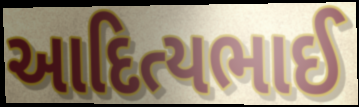
આદિત્યભાઈ